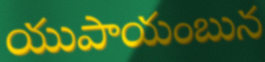
యుపాయంబున